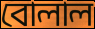
বোলাল